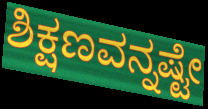
ಶಿಕ್ಷಣವನ್ನಷ್ಟೇ